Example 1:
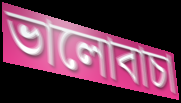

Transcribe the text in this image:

ভালোবাচা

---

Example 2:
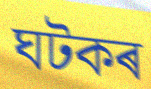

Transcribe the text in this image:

ঘটকৰ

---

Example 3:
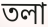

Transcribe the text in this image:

তলা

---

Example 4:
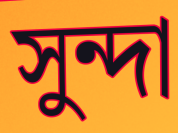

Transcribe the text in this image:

সুন্দা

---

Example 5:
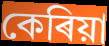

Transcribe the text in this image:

কেৰিয়া